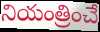
నియంత్రించే